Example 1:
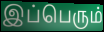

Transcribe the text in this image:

இப்பெரும்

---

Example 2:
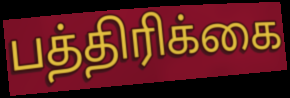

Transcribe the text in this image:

பத்திரிக்கை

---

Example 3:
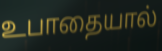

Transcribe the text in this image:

உபாதையால்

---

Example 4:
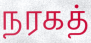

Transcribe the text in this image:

நரகத்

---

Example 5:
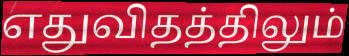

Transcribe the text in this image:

எதுவிதத்திலும்